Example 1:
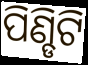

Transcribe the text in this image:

ପିଣ୍ଡିଟି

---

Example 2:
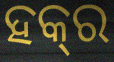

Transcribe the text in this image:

ହକ୍‌ର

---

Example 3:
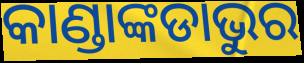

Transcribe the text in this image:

କାଣ୍ଡାଙ୍କଡାଭୁର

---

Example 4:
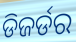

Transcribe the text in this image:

ଡିଜର୍ଡର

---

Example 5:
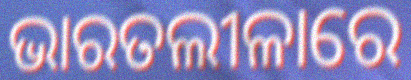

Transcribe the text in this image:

ଭାରତଲୀଳାରେ